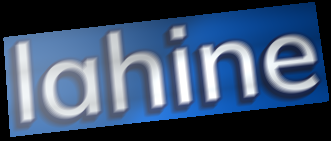
lahine